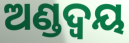
ଅଣ୍ଡଦ୍ୱୟ